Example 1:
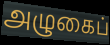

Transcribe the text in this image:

அழுகைப்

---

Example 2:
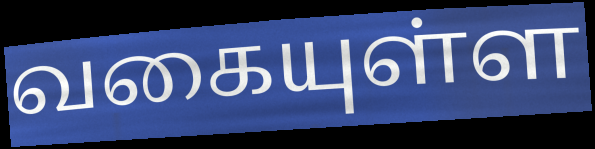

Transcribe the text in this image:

வகையுள்ள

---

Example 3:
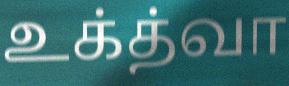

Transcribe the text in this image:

உக்த்வா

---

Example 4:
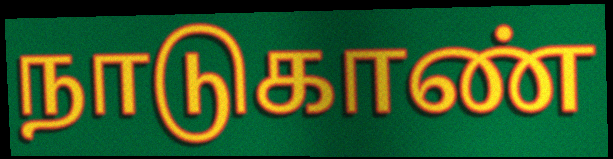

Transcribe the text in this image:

நாடுகாண்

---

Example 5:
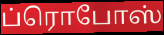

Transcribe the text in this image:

ப்ரொபோஸ்